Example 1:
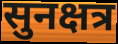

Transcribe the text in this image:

सुनक्षत्र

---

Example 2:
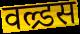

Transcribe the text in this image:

वल्र्डस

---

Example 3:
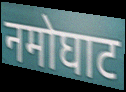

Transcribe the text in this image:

नमोघाट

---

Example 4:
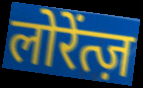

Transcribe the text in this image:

लोरेंत्ज़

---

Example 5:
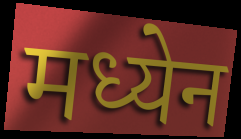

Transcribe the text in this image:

मध्येन